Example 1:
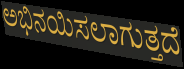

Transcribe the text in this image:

ಅಭಿನಯಿಸಲಾಗುತ್ತದೆ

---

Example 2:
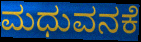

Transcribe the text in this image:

ಮಧುವನಕೆ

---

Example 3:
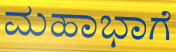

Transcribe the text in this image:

ಮಹಾಭಾಗೆ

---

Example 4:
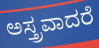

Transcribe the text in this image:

ಅಸ್ತ್ರವಾದರೆ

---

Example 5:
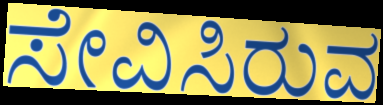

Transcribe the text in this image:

ಸೇವಿಸಿರುವ